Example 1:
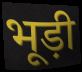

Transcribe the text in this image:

भूड़ी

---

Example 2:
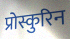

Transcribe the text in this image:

प्रोस्कुरिन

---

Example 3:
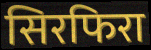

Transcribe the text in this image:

सिरफिरा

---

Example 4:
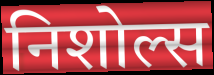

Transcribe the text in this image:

निशोल्स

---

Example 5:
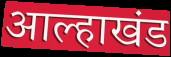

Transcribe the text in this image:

आल्हाखंड